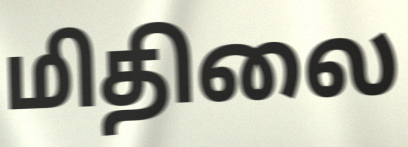
மிதிலை